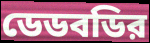
ডেডবডির